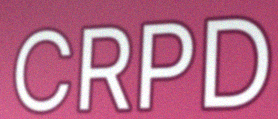
CRPD